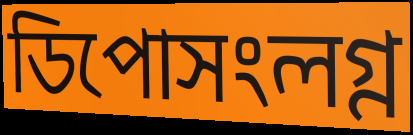
ডিপোসংলগ্ন